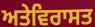
ਅਤੇਵਿਰਾਸਤ